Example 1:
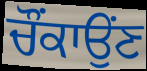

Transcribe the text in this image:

ਚੌਂਕਾਉਂਣ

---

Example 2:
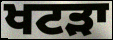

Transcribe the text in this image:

ਖਟੜਾ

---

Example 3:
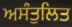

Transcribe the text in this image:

ਅਸੰਤੁਲਿਤ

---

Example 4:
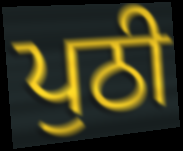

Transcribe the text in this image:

ਪੁਠੀ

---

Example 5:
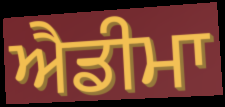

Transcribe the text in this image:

ਐਡੀਮਾ